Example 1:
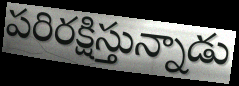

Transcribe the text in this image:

పరిరక్షిస్తున్నాడు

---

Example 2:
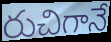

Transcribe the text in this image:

రుచిగానే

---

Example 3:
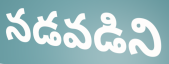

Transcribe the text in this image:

నడవడిని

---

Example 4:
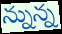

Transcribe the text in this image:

న్నున్న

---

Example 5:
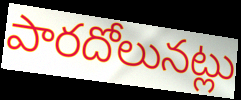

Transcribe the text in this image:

పారదోలునట్లు